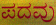
ಪದವು